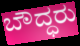
ಬೌದ್ಧರು